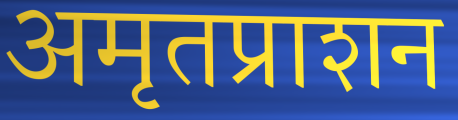
अमृतप्राशन